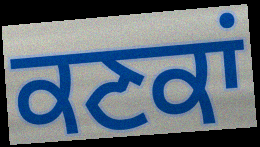
ਕਣਕਾਂ